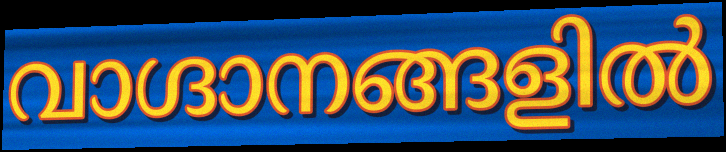
വാഗ്ദാനങ്ങളിൽ